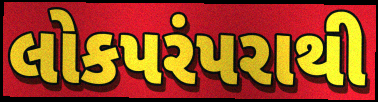
લોકપરંપરાથી